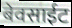
बेवसाईट